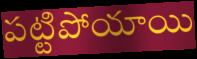
పట్టిపోయాయి